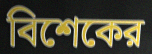
বিশেকের